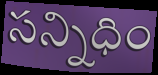
సన్నిధిం